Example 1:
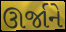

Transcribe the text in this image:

ઊર્જાને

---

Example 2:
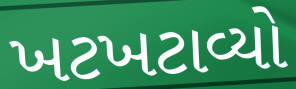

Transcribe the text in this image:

ખટખટાવ્યો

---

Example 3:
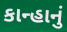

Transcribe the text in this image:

કાન્હાનું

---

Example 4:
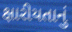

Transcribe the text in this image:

ક્ષારીયતાનું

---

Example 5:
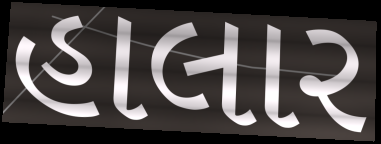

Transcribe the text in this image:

હાલાર